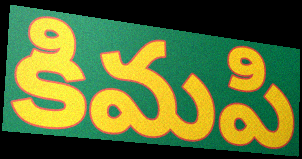
కిమపి